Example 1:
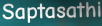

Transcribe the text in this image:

Saptasathi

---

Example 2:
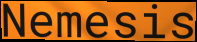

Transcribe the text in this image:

Nemesis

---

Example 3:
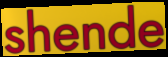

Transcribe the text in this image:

shende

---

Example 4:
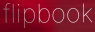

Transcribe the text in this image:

flipbook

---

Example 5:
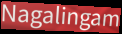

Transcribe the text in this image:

Nagalingam